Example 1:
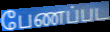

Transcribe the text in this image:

பேணப்பட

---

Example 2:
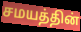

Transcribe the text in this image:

சமயத்தின்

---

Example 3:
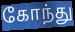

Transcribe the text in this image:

கோந்து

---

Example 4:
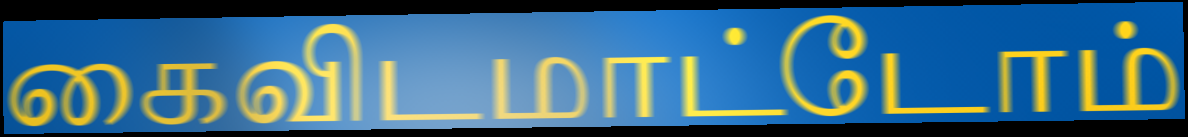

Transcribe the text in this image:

கைவிடமாட்டோம்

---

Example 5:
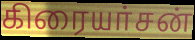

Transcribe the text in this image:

கிரையர்சன்